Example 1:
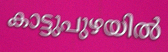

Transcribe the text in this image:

കാട്ടുപുഴയിൽ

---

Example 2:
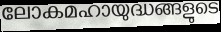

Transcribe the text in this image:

ലോകമഹായുദ്ധങ്ങളുടെ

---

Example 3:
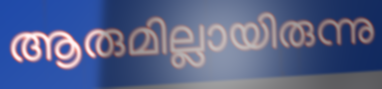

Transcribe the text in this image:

ആരുമില്ലായിരുന്നു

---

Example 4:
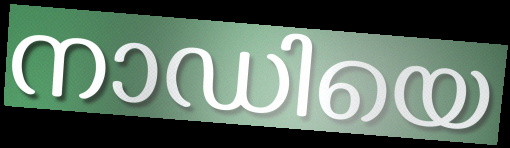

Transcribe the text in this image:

നാഡിയെ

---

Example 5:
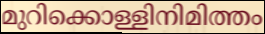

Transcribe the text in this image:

മുറിക്കൊള്ളിനിമിത്തം